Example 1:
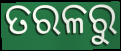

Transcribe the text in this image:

ତରଳରୁ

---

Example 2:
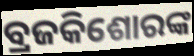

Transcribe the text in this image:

ବ୍ରଜକିଶୋରଙ୍କ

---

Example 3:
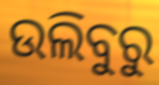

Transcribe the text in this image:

ଉଲିବୁରୁ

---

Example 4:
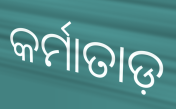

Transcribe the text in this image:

କର୍ମାତାଡ଼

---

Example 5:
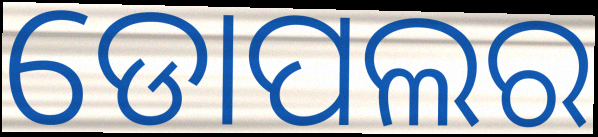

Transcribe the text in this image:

ଡୋପଲର